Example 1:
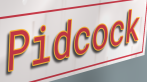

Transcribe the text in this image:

Pidcock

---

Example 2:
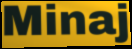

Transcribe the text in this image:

Minaj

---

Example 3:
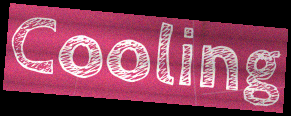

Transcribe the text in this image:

Cooling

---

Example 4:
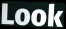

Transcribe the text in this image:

Look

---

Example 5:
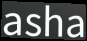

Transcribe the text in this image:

asha